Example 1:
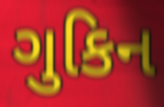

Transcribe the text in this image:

ગુકિન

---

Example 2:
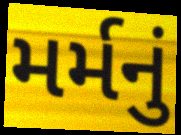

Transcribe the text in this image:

મર્મનું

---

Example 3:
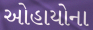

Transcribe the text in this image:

ઓહાયોના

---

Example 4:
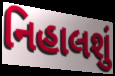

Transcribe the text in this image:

નિહાલશું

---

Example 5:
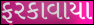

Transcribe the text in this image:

ફરકાવાયા